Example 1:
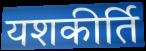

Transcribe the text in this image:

यशकीर्ति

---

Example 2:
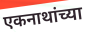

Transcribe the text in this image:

एकनाथांच्या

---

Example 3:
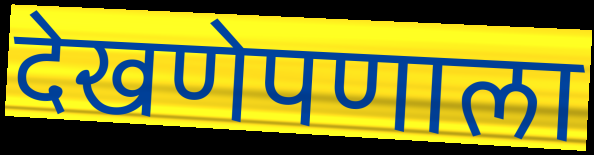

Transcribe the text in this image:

देखणेपणाला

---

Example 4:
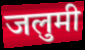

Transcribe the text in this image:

जलुमी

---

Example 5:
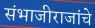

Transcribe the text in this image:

संभाजीराजांचे